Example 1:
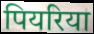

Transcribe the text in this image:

पियरिया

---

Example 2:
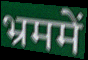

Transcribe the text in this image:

भ्रममें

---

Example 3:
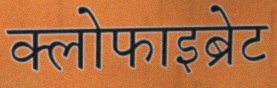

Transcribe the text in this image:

क्लोफाइब्रेट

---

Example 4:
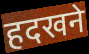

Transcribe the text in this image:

हदखने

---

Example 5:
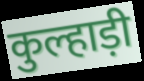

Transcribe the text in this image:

कुल्हाड़ी